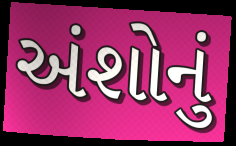
અંશોનું